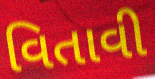
વિતાવી